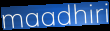
maadhiri